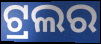
ଟ୍ରଲର